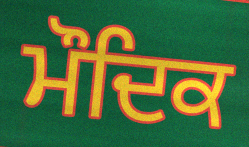
ਮੌਦਿਕ